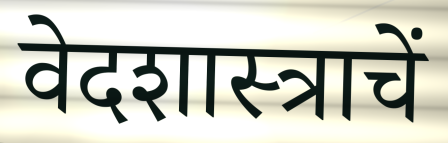
वेदशास्त्राचें